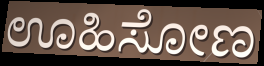
ಊಹಿಸೋಣ